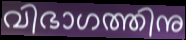
വിഭാഗത്തിനു